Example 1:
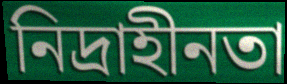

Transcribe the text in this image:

নিদ্ৰাহীনতা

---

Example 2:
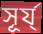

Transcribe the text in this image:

সূৰ্য্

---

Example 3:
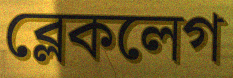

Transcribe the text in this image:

ব্লেকলেগ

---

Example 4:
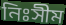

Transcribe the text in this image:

নিঃসীম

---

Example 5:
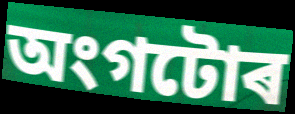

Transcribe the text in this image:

অংগটোৰ